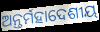
ଅନ୍ତର୍ମହାଦେଶୀୟ